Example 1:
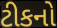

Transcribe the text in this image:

ટીકનો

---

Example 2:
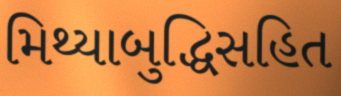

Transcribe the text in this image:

મિથ્યાબુદ્ધિસહિત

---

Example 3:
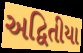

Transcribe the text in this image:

અદ્વિતીયા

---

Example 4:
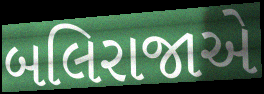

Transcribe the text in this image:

બલિરાજાએ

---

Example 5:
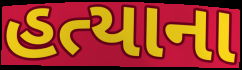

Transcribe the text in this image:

હત્યાના